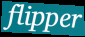
flipper